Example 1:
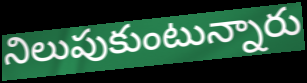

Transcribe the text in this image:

నిలుపుకుంటున్నారు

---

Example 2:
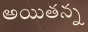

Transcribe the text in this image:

అయితన్న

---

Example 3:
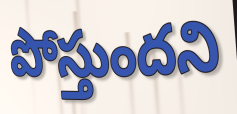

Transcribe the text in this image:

పోస్తుందని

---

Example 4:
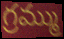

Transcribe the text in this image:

గ్రమ్ము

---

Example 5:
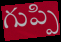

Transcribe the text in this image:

గుప్పి